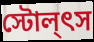
স্টোল্ৎস